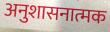
अनुशासनात्मक